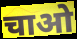
चाओ